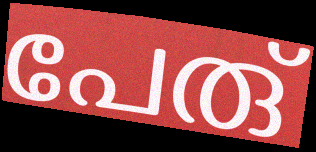
പേരു്